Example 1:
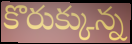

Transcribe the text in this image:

కొరుక్కున్న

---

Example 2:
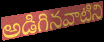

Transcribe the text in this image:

అడిగినవాటిని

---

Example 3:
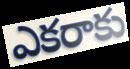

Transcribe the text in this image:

ఎకరాకు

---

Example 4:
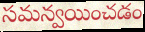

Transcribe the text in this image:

సమన్వయించడం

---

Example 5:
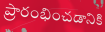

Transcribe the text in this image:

ప్రారంభించడానికి